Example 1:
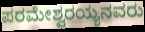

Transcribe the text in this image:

ಪರಮೇಶ್ವರಯ್ಯನವರು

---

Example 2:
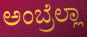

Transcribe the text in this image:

ಅಂಬ್ರೆಲ್ಲಾ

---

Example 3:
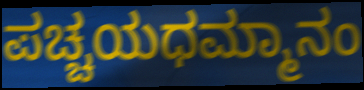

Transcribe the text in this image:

ಪಚ್ಚಯಧಮ್ಮಾನಂ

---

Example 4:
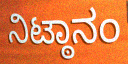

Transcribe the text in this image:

ನಿಟ್ಠಾನಂ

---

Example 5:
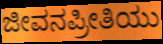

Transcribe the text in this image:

ಜೀವನಪ್ರೀತಿಯು